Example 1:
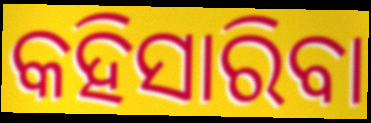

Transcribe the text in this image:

କହିସାରିବା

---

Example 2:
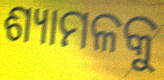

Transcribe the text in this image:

ଶ୍ୟାମଳକୁ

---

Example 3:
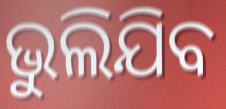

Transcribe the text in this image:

ଭୁଲିଯିବ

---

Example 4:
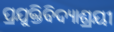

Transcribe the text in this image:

ପ୍ରଯୁକ୍ତିବିଦ୍ୟାଶ୍ରୟୀ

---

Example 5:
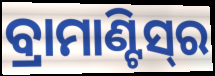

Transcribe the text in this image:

ବ୍ରାମାଣ୍ଟିସ୍‌ର